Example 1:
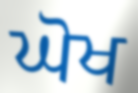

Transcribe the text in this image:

ਘੋਖ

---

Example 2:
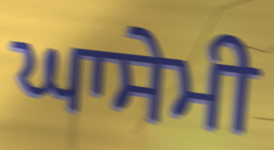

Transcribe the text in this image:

ਘਾਸੇਮੀ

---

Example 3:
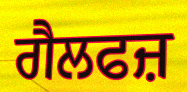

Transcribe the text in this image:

ਗੈਲਫਜ਼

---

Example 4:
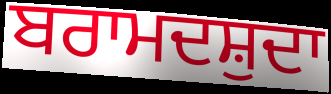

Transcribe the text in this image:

ਬਰਾਮਦਸ਼ੁਦਾ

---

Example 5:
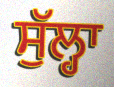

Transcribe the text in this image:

ਸੁੱਲ੍ਹਾ